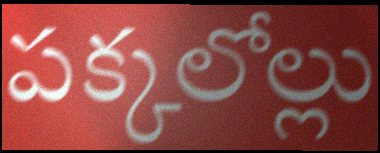
పక్కలోల్లు